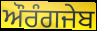
ਔਰੰਗਜੇਬ